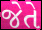
જેતે